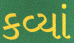
કવ્યાં